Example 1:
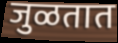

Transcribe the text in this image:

जुळतात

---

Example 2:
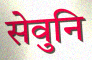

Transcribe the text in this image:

सेवुनि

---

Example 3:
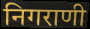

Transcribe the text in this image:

निगराणी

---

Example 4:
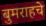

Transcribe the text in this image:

बुमराहचे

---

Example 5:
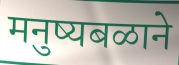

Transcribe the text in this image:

मनुष्यबळाने